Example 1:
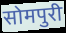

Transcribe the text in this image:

सोमपुरी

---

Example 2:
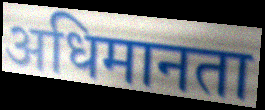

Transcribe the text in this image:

अधिमानता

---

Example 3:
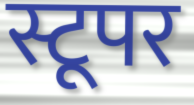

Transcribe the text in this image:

स्टूपर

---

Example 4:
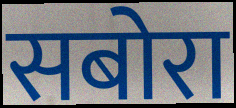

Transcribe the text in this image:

सबोरा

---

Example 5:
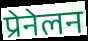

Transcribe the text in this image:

प्रेनेलन